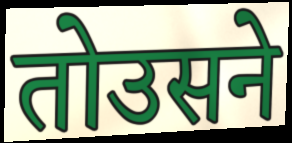
तोउसने